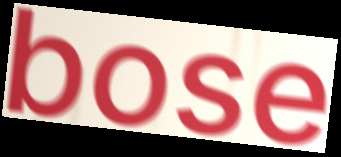
bose